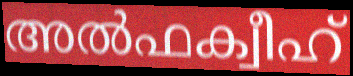
അൽഫക്വീഹ്